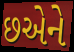
છએને